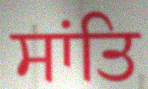
ਸਾਂਤਿ